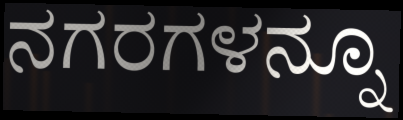
ನಗರಗಳನ್ನೂ